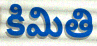
కిమితి